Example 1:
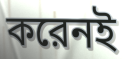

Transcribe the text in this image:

করেনই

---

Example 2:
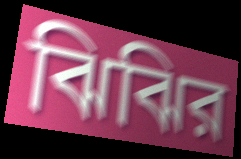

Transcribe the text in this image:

ঝিঝির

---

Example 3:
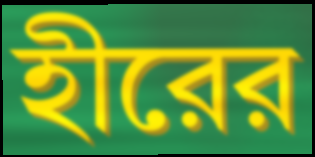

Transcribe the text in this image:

হীরের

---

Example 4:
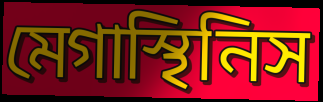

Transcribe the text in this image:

মেগাস্থিনিস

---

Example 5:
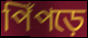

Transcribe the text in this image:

পিঁপড়ে